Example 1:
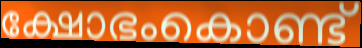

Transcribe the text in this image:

ക്ഷോഭംകൊണ്ട്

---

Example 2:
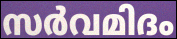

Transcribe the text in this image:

സർവമിദം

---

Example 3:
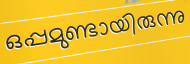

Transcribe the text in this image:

ഒപ്പമുണ്ടായിരുന്നു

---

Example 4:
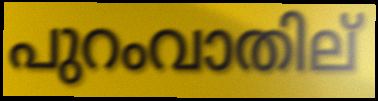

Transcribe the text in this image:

പുറംവാതില്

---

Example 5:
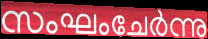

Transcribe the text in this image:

സംഘംചേർന്നു